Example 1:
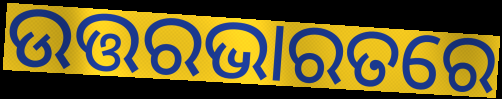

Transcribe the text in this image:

ଉତ୍ତରଭାରତରେ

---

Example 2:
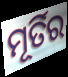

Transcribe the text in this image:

ମୂର୍ତିର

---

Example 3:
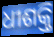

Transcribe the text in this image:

ଧୀଶକ୍ତି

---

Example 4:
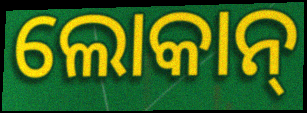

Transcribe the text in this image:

ଲୋକାନ୍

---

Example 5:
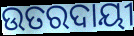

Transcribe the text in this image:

ଉତରଦାୟୀ